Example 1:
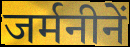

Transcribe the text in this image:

जर्मनीनें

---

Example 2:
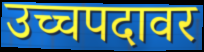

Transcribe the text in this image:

उच्चपदावर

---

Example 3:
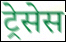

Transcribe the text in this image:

ट्रेसेस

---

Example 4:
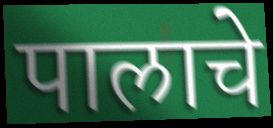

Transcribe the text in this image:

पालाचे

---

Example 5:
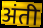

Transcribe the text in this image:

अंती